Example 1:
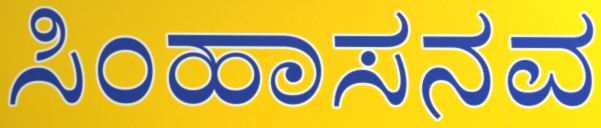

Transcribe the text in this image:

ಸಿಂಹಾಸನವ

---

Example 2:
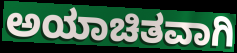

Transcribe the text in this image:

ಅಯಾಚಿತವಾಗಿ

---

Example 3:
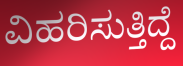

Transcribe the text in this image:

ವಿಹರಿಸುತ್ತಿದ್ದೆ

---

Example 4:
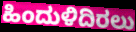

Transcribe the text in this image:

ಹಿಂದುಳಿದಿರಲು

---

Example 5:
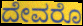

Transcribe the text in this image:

ದೇವರೊ